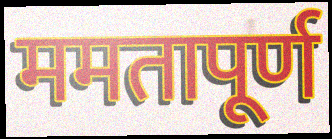
ममतापूर्ण